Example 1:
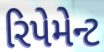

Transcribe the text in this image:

રિપેમેન્ટ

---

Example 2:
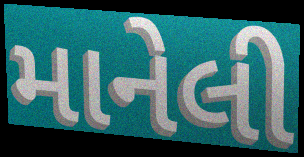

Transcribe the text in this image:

માનેલી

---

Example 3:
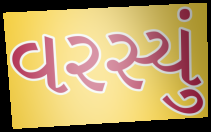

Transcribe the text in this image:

વરસ્યું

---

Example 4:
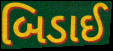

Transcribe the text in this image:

બિડાઈ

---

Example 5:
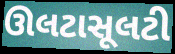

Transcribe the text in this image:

ઊલટાસૂલટી